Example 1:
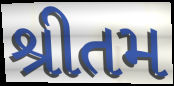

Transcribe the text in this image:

શ્રીતમ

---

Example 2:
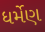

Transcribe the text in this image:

ધર્મેણ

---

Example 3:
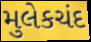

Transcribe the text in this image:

મુલેકચંદ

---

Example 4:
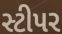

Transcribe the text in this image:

સ્ટીપર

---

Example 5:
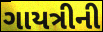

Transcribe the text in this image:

ગાયત્રીની